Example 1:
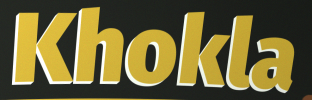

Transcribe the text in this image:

Khokla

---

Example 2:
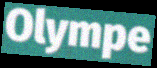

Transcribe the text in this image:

Olympe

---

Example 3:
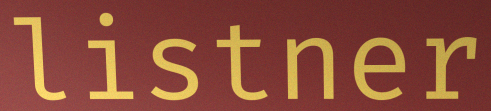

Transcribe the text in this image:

listner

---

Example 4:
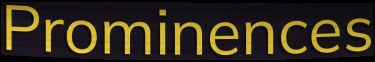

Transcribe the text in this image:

Prominences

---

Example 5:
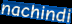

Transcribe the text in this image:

nachindi